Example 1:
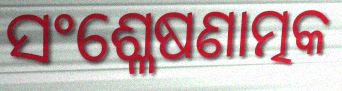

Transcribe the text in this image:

ସଂଶ୍ଳେଷଣାତ୍ମକ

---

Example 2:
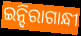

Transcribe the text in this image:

ଇନ୍ଦିରାଗାନ୍ଧୀ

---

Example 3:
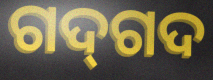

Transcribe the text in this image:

ଗଦ୍‌ଗଦ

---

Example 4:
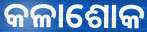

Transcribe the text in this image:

କଳାଶୋକ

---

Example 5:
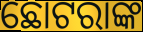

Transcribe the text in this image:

ଛୋଟରାଙ୍କ